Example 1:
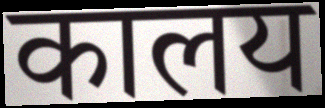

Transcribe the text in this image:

कालय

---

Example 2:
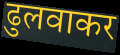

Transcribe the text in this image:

ढुलवाकर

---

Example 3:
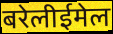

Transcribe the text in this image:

बरेलीईमेल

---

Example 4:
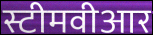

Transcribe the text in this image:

स्टीमवीआर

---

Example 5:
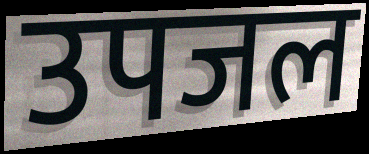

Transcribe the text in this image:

उपजल